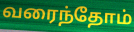
வரைந்தோம்